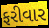
ફરીવાર